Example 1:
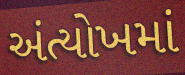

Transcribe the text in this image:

અંત્યોખમાં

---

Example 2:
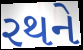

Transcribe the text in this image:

રથને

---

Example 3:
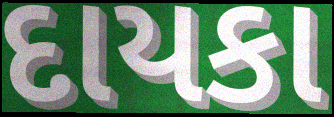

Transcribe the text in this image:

દાયકા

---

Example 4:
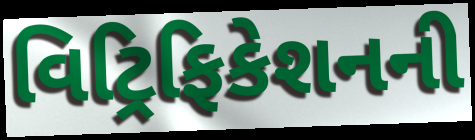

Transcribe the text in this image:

વિટ્રિફિકેશનની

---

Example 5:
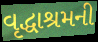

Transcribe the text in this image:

વૃદ્ધાશ્રમની